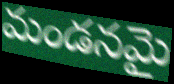
మండనమై